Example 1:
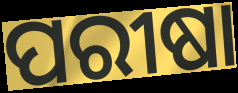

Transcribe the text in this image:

ପରୀଷା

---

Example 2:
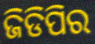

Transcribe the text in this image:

ଜିଡିପିର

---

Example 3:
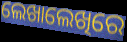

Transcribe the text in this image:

ଲେଖାଲେଖିରେ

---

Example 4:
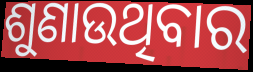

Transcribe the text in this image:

ଶୁଣାଉଥିବାର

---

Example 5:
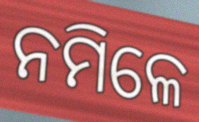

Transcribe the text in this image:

ନମିଳେ